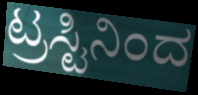
ಟ್ರಸ್ಟಿನಿಂದ